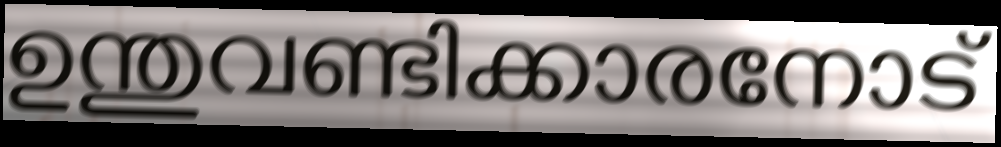
ഉന്തുവണ്ടിക്കാരനോട്